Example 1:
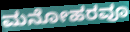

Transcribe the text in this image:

ಮನೋಹರವೂ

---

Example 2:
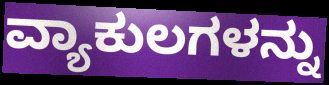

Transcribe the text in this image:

ವ್ಯಾಕುಲಗಳನ್ನು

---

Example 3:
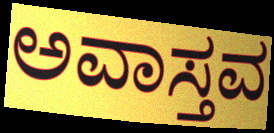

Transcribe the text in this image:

ಅವಾಸ್ತವ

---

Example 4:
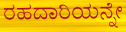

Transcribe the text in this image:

ರಹದಾರಿಯನ್ನೇ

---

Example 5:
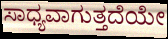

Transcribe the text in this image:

ಸಾಧ್ಯವಾಗುತ್ತದೆಯೇ